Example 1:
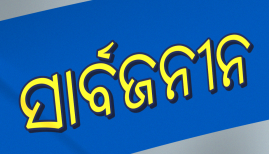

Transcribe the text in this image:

ସାର୍ବଜନୀନ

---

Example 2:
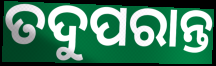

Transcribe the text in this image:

ତଦୁପରାନ୍ତ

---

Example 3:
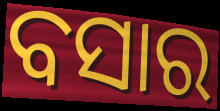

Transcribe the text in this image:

ବସାର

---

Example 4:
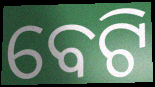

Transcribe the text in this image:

ବେଟି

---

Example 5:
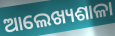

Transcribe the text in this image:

ଆଲେଖ୍ୟଶାଳା